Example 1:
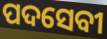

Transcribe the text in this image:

ପଦସେବୀ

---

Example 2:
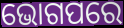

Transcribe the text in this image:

ଭୋଗପରେ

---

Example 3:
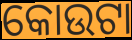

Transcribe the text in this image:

କୋଉଟା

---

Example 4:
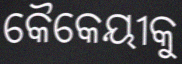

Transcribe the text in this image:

କୈକେୟୀକୁ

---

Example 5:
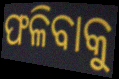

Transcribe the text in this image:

ଫଳିବାକୁ